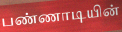
பண்ணாடியின்